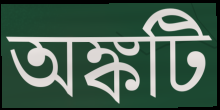
অঙ্কটি